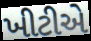
ખીટીએ